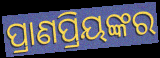
ପ୍ରାଣପ୍ରିୟଙ୍କର